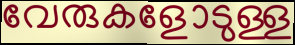
വേരുകളോടുള്ള